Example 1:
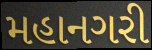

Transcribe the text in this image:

મહાનગરી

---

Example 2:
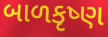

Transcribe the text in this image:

બાળકૃષ્ણ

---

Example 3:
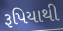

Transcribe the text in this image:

રૂપિયાથી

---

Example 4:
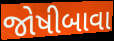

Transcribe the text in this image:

જોષીબાવા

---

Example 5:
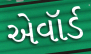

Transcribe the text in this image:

એવૉર્ડ